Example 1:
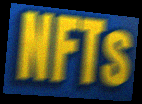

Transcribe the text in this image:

NFTs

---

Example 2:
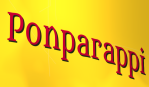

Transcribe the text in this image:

Ponparappi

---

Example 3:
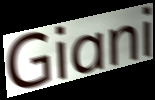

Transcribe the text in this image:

Giani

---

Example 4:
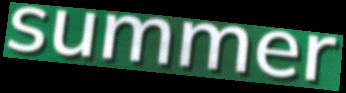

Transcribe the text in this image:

summer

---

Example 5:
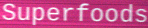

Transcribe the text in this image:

Superfoods